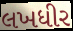
લખધીર